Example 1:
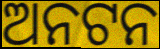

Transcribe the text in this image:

ଅନଟନ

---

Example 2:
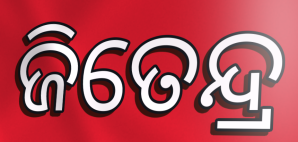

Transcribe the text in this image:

ଜିତେନ୍ଦ୍ର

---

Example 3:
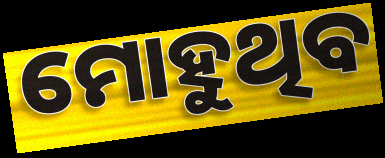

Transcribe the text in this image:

ମୋହୁଥିବ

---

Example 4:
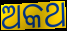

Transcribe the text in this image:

ଅକଥ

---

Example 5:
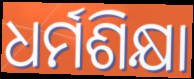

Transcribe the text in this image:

ଧର୍ମଶିକ୍ଷା